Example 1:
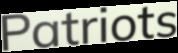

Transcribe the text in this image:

Patriots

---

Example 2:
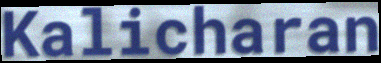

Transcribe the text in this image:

Kalicharan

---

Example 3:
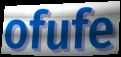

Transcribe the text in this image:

ofufe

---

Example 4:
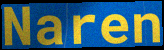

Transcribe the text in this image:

Naren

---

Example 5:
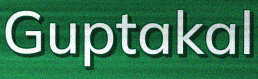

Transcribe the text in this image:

Guptakal